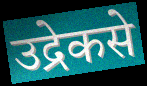
उद्रेकसे